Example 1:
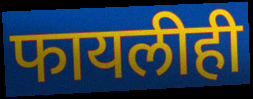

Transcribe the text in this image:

फायलीही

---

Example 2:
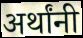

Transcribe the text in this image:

अर्थांनी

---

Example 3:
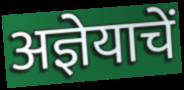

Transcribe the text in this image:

अज्ञेयाचें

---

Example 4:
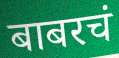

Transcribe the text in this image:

बाबरचं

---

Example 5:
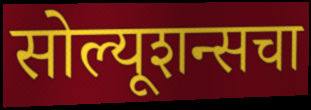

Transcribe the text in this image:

सोल्यूशन्सचा